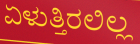
ಏಳುತ್ತಿರಲಿಲ್ಲ